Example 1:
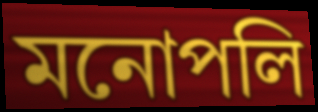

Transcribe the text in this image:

মনোপলি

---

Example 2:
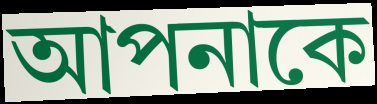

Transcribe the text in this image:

আপনাকে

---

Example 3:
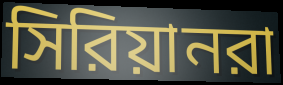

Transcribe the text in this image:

সিরিয়ানরা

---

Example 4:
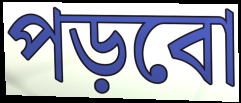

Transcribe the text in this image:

পড়বো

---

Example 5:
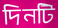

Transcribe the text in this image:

দিনটি